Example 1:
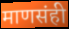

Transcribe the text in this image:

माणसंही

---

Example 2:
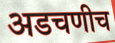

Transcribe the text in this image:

अडचणीच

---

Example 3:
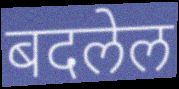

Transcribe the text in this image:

बदलेल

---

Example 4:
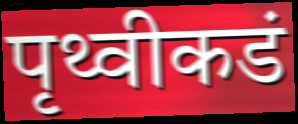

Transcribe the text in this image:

पृथ्वीकडं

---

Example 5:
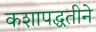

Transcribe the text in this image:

कशापद्धतीने